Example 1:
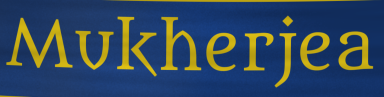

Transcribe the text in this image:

Mukherjea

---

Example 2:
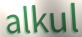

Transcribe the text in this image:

alkul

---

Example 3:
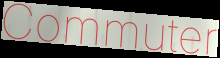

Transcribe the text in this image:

Commuter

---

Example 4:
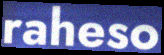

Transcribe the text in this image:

raheso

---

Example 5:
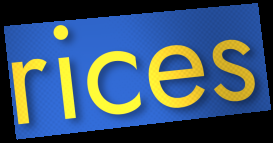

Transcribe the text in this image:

rices